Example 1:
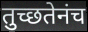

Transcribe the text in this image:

तुच्छतेनंच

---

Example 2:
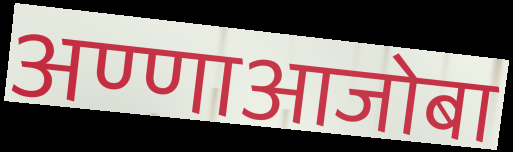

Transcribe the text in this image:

अण्णाआजोबा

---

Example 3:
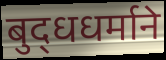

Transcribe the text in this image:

बुद्धधर्माने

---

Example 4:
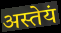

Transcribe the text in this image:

अस्तेयं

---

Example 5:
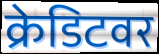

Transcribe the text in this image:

क्रेडिटवर